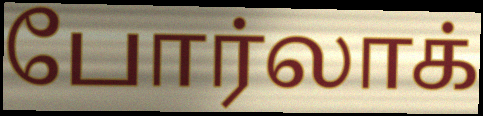
போர்லாக்